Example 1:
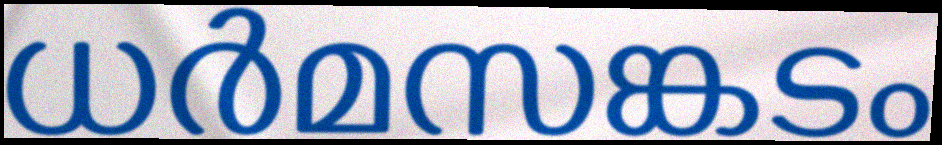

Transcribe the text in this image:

ധർമസങ്കടം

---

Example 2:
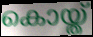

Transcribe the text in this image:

കൊയ്ത്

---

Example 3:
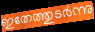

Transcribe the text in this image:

ഇതേത്തുടർന്നു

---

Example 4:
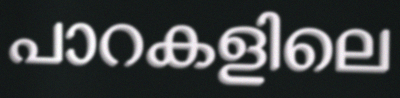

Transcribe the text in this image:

പാറകളിലെ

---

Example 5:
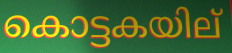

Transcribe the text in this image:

കൊട്ടകയില്